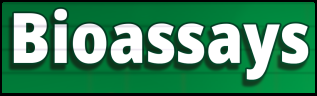
Bioassays